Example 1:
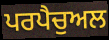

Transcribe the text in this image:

ਪਰਪੈਚੁਅਲ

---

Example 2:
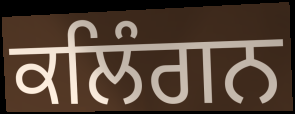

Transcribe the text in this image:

ਕਲਿੰਗਨ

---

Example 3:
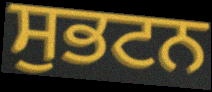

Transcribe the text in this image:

ਸੁਭਟਨ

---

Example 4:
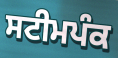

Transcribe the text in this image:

ਸਟੀਮਪੰਕ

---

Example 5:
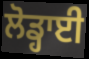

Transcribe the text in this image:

ਲੋਡ੍ਹਾਈ